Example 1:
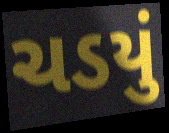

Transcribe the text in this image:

ચડયું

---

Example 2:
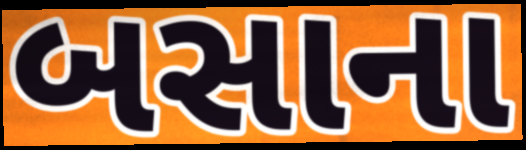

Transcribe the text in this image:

બસાના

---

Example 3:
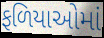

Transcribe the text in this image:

ફળિયાઓમાં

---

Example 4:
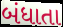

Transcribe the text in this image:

બંધાતા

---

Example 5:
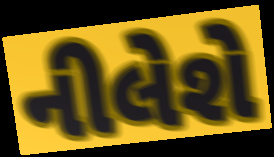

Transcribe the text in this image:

નીલેશે